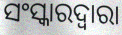
ସଂସ୍କାରଦ୍ୱାରା